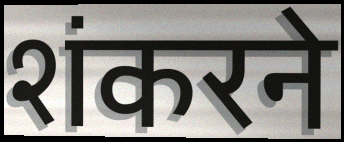
शंकरने